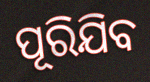
ପୂରିଯିବ